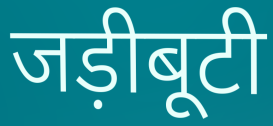
जड़ीबूटी